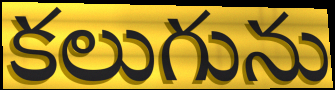
కలుగును